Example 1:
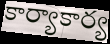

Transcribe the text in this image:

కార్యాకార్య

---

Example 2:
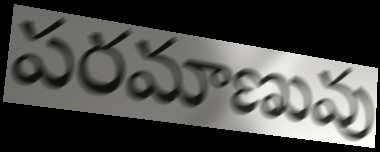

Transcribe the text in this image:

పరమాణువు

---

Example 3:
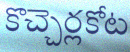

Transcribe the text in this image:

కొచ్చెర్లకోట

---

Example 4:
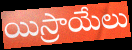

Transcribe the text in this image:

యిస్రాయేలు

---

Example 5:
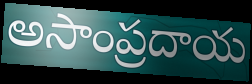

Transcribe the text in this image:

అసాంప్రదాయ